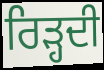
ਰਿੜ੍ਹਦੀ